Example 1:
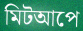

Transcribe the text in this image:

মিটআপে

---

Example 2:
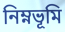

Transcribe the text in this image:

নিম্নভূমি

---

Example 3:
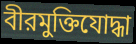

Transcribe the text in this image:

বীরমুক্তিযোদ্ধা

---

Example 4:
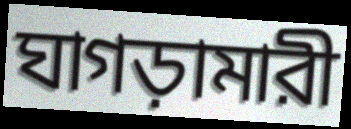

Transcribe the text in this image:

ঘাগড়ামারী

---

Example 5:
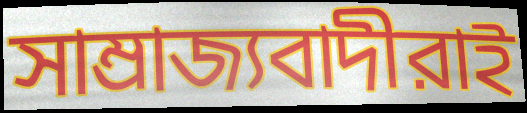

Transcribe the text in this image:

সাম্রাজ্যবাদীরাই